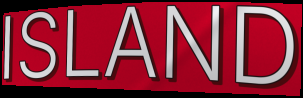
ISLAND